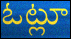
ఓట్లూ